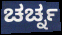
ಚರ್ಚ್ನ